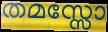
തമസ്സോ